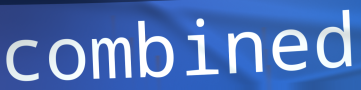
combined